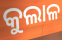
କୁଲାଳ